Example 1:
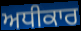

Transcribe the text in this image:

ਅਧੀਕਾਰ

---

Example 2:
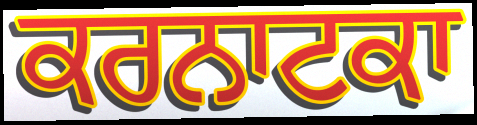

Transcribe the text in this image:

ਕਰਨਾਟਕਾ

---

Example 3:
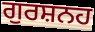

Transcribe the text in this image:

ਗੁਰਸ਼ਨਹ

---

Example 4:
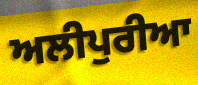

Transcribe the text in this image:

ਅਲੀਪੁਰੀਆ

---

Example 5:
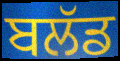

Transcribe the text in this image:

ਬਲੱਡ